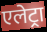
एलेट्रा